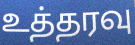
உத்தரவு